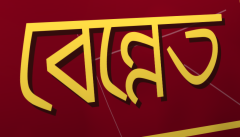
বেন্নেত